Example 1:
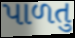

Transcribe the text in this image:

પાળતુ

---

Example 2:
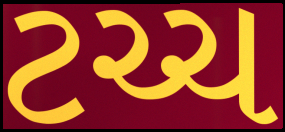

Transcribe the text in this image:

ટચ્ચ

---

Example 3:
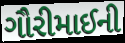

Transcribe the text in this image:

ગૌરીમાઈની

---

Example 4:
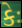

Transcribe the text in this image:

કેઃ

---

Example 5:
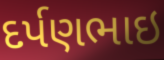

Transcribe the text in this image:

દર્પણભાઇ